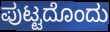
ಪುಟ್ಟದೊಂದು